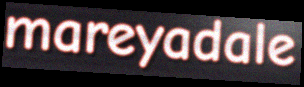
mareyadale